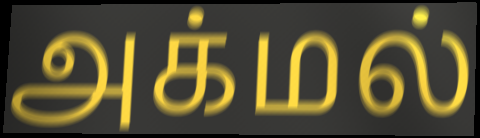
அக்மல்